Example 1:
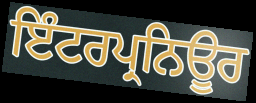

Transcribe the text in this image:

ਇੰਟਰਪ੍ਰਨਿਊਰ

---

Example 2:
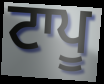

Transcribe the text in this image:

ਟਾਪੂ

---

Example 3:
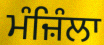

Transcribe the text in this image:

ਮੰਜ਼ਿੰਲਾ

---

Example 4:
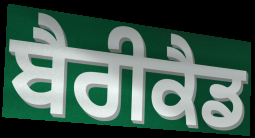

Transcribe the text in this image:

ਬੈਰੀਕੈਡ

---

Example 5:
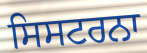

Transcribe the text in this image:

ਸਿਸਟਰਨਾ